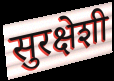
सुरक्षेशी